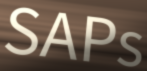
SAPs